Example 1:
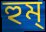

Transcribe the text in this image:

হুম্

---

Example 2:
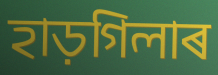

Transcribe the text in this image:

হাড়গিলাৰ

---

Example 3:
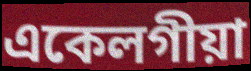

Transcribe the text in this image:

একেলগীয়া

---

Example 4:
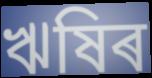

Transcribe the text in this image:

ঋষিৰ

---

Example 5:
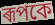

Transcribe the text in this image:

ৰূপকে